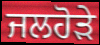
ਜਲਹੋੜੇ